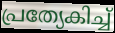
പ്രത്യേകിച്ച്